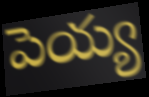
పెయ్య